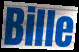
Bille